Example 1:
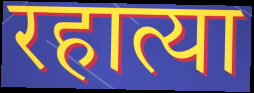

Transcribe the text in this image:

रहात्या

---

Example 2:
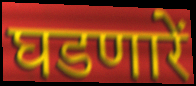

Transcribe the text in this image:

घडणारें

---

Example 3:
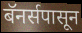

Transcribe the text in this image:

बॅनर्सपासून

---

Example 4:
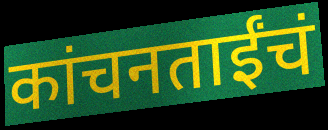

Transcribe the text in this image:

कांचनताईंचं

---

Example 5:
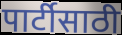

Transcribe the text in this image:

पार्टीसाठी